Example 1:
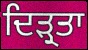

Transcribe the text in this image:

ਦਿੜ੍ਰਤਾ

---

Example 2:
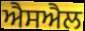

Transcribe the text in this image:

ਐਸਐਲ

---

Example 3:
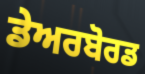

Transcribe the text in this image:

ਡੇਅਰਬੋਰਡ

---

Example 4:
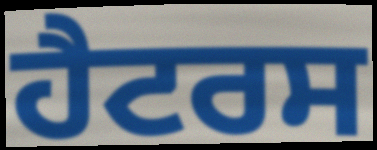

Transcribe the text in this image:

ਹੈਟਰਸ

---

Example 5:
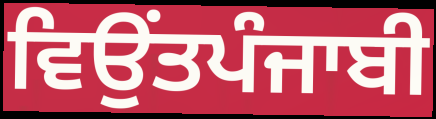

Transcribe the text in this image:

ਵਿਉਂਤਪੰਜਾਬੀ